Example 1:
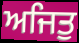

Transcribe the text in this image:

ਅਜਿਤੁ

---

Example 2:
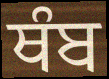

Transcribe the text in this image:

ਥੰਬ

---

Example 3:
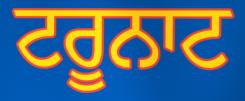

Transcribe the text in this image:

ਟਰੂਨਾਟ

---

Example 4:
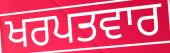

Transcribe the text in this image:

ਖਰਪਤਵਾਰ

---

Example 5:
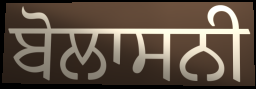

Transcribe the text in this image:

ਬੋਲਾਸਨੀ